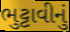
ભુટ્ટાવીનું